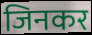
जिनकर